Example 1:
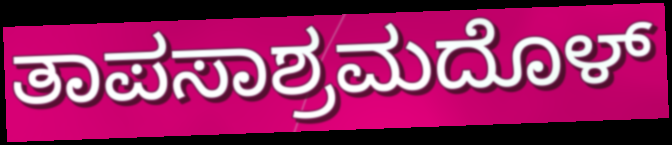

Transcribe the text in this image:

ತಾಪಸಾಶ್ರಮದೊಳ್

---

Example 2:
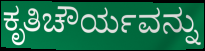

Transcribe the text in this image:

ಕೃತಿಚೌರ್ಯವನ್ನು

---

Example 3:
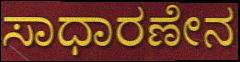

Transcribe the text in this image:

ಸಾಧಾರಣೇನ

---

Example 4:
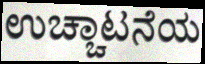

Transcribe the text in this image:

ಉಚ್ಚಾಟನೆಯ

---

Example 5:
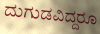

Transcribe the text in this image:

ದುಗುಡವಿದ್ದರೂ